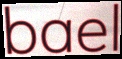
bael